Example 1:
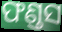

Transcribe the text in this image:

ଫଣ୍ଡସ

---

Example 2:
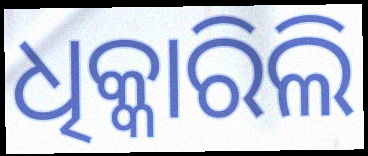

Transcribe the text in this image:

ଧିକ୍କାରିଲି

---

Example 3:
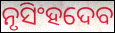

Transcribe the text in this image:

ନୃସିଂହଦେବ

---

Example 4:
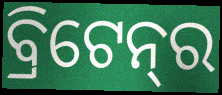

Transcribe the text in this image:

ବ୍ରିଟେନ୍‌ର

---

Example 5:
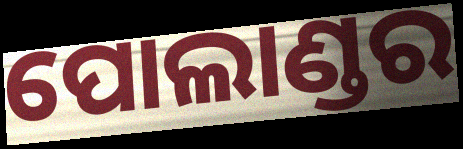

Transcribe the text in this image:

ପୋଲାଣ୍ଡର